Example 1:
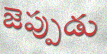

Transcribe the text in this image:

జెప్పుడు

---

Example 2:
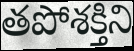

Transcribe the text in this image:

తపోశక్తిని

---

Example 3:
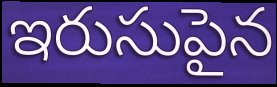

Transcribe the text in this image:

ఇరుసుపైన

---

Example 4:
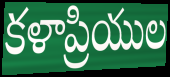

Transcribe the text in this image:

కళాప్రియుల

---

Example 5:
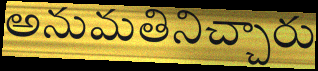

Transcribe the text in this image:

అనుమతినిచ్చారు